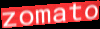
zomato